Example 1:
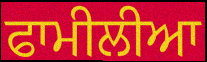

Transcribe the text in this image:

ਫਾਮੀਲੀਆ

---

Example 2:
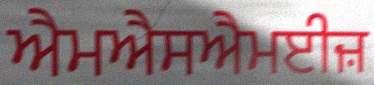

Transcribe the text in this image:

ਐਮਐਸਐਮਈਜ਼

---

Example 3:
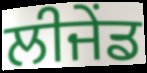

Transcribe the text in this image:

ਲੀਜੇਂਡ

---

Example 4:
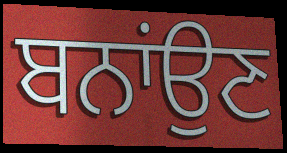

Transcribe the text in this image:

ਬਨਾਂਉਣ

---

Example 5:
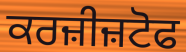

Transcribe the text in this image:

ਕਰਜ਼ੀਜ਼ਟੋਫ